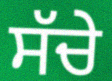
ਸੱਚੇ